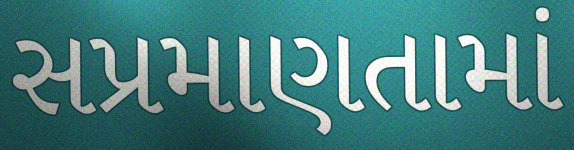
સપ્રમાણતામાં